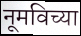
नूमविच्या